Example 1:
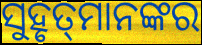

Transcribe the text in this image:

ସୁହୃତ୍‌ମାନଙ୍କର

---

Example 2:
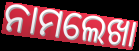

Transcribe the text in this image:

ନାମଲେଖା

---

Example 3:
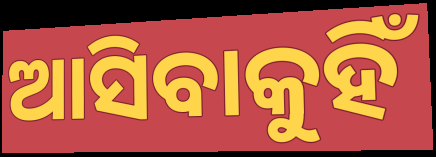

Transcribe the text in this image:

ଆସିବାକୁହିଁ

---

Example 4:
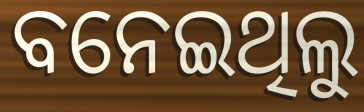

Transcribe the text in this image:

ବନେଇଥିଲୁ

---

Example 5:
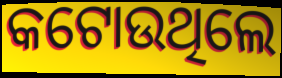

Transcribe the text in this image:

କଟୋଉଥିଲେ